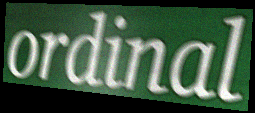
ordinal